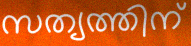
സത്യത്തിന്